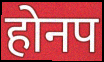
होनप